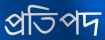
প্ৰতিপদ